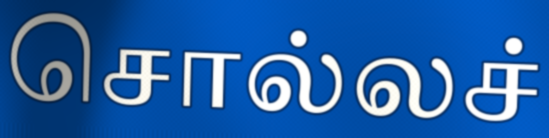
சொல்லச்